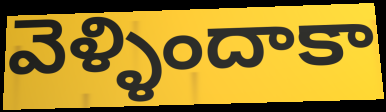
వెళ్ళిందాకా